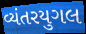
વ્યંતરયુગલ